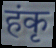
हंकृ